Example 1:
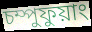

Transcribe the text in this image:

চম্পুফুয়াং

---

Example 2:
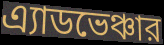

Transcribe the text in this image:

এ্যাডভেঞ্চার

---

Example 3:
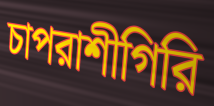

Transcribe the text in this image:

চাপরাশীগিরি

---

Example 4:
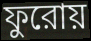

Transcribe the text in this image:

ফুরোয়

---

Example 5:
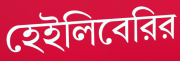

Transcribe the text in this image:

হেইলিবেরির